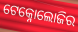
ଟେକ୍ନୋଲୋଜିର